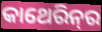
କାଥେରିନ୍‌ର